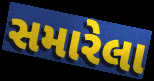
સમારેલા